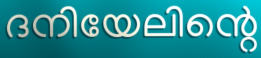
ദനിയേലിന്റെ